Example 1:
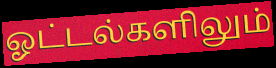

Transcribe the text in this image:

ஓட்டல்களிலும்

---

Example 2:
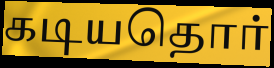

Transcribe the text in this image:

கடியதொர்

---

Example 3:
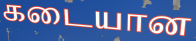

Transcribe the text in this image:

கடையான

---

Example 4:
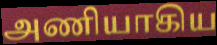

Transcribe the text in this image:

அணியாகிய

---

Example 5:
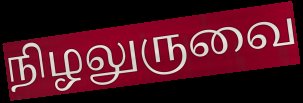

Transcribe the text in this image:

நிழலுருவை